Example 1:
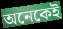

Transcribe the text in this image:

অনেকেই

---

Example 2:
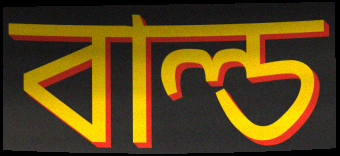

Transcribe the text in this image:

বাল্ড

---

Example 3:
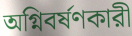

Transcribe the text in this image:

অগ্নিবর্ষণকারী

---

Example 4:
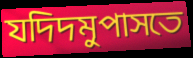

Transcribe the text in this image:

যদিদমুপাসতে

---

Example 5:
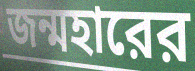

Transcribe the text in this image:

জন্মহারের